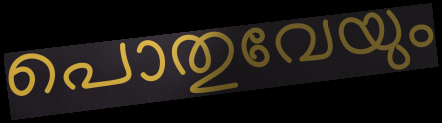
പൊതുവേയും